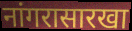
नांगरासारखा